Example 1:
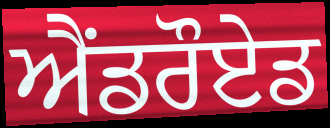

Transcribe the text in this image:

ਐਂਡਰੌਏਡ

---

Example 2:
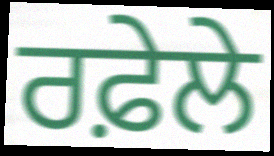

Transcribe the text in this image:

ਰਫ਼ੇਲੇ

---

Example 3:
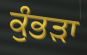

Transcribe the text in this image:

ਕੁੰਭੜਾ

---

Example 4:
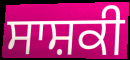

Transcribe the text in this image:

ਸਾਸ਼ਕੀ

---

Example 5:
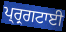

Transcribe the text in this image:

ਪ੍ਰ੍ਰਗਟਾਈ